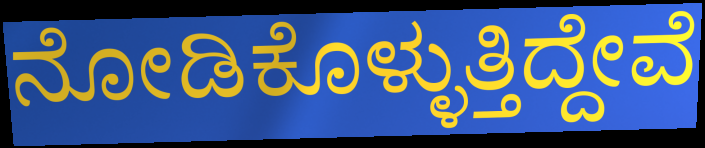
ನೋಡಿಕೊಳ್ಳುತ್ತಿದ್ದೇವೆ